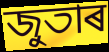
জুতাৰ